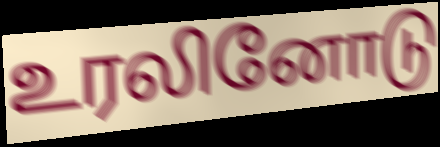
உரலினோடு